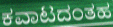
ಕವಾಟದಂತಹ